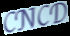
CNCD